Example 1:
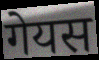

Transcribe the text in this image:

गेयस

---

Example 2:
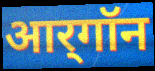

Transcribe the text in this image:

आर्‌गॉन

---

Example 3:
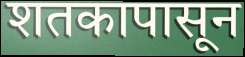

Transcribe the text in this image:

शतकापासून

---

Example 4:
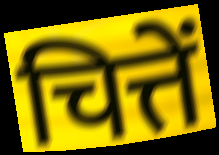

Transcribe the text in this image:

चित्तें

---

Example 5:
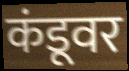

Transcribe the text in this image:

कंडूवर